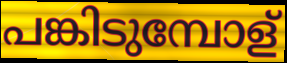
പങ്കിടുമ്പോള്